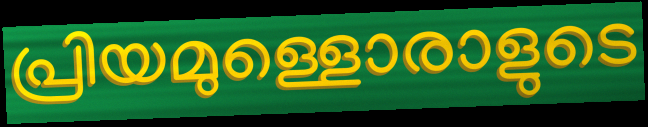
പ്രിയമുള്ളൊരാളുടെ